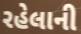
રહેલાની